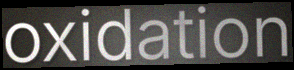
oxidation